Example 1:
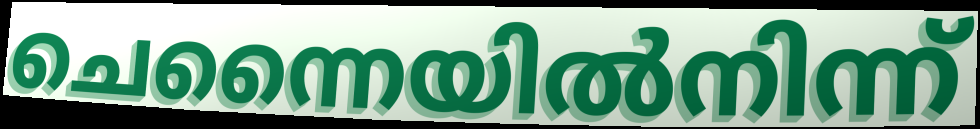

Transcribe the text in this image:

ചെന്നൈയിൽനിന്ന്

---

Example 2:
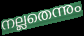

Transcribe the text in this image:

നല്ലതെന്നും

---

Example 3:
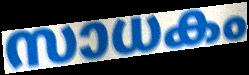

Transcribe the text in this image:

സാധകം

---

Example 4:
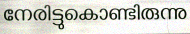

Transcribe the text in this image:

നേരിട്ടുകൊണ്ടിരുന്നു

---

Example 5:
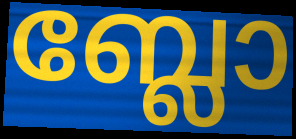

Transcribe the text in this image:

ബ്ലോ